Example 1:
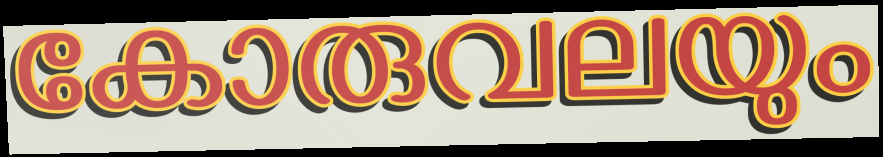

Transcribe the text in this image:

കോരുവലയും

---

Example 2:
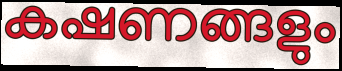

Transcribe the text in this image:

കഷണങ്ങളും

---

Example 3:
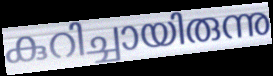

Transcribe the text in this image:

കുറിച്ചായിരുന്നു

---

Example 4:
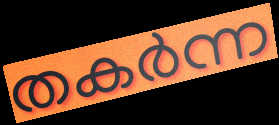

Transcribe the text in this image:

തകർന്ന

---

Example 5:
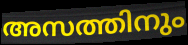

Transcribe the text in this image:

അസത്തിനും